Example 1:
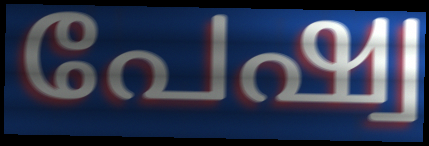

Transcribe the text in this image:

പേഷ്വ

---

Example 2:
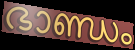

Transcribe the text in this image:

ഭാണ്ഡം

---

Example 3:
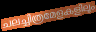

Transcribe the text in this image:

ചലച്ചിത്രമേളകളിലും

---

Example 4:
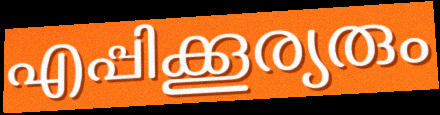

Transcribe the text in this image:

എപ്പിക്കൂര്യരും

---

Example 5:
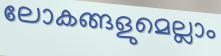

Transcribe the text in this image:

ലോകങ്ങളുമെല്ലാം